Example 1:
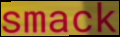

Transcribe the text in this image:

smack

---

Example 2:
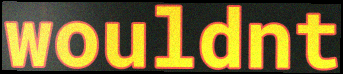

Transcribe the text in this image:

wouldnt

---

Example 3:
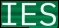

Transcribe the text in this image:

IES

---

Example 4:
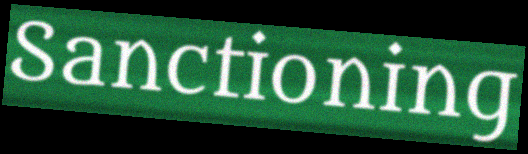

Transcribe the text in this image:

Sanctioning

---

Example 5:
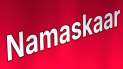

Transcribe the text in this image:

Namaskaar